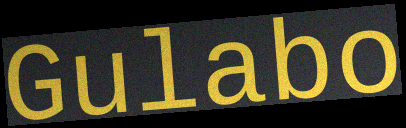
Gulabo